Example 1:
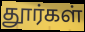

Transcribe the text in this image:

தூர்கள்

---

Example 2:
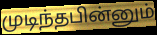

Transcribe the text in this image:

முடிந்தபின்னும்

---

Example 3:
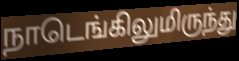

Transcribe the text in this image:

நாடெங்கிலுமிருந்து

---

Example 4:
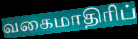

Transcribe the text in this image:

வகைமாதிரிப்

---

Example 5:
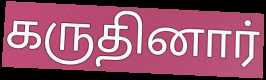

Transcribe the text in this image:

கருதினார்